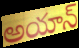
అయాన్